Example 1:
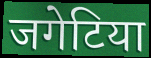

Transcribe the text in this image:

जगेटिया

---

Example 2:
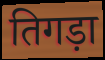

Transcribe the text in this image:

तिगड़ा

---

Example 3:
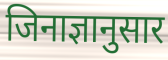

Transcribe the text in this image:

जिनाज्ञानुसार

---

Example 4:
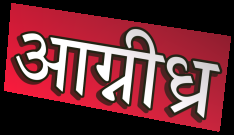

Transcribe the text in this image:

आग्नीध्र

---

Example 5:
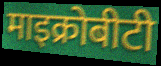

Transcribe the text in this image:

माइक्रोबीटी